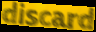
discard